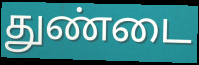
துண்டை